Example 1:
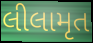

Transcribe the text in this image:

લીલામૃત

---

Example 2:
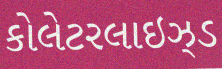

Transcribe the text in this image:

કોલેટરલાઇઝ્ડ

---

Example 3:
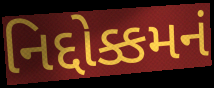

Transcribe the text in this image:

નિદ્દોક્કમનં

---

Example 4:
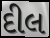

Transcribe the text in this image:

દીલ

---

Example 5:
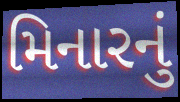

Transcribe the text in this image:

મિનારનું